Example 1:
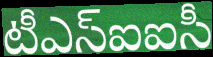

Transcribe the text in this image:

టీఎస్ఐఐసీ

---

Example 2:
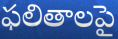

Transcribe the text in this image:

ఫలితాలపై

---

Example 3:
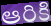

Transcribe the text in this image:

ఆరికి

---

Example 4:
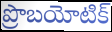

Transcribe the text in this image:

ప్రొబయోటిక్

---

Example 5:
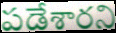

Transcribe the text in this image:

పడేశారని